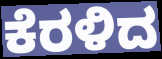
ಕೆರಳಿದ